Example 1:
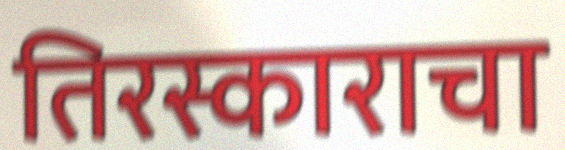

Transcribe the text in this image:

तिरस्काराचा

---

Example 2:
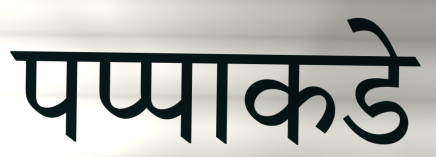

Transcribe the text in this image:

पप्पाकडे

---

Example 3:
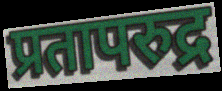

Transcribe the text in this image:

प्रतापरुद्र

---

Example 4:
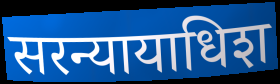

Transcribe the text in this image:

सरन्यायाधिश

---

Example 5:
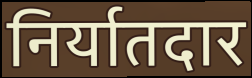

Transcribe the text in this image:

निर्यातदार